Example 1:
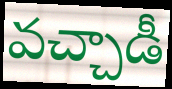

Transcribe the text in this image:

వచ్చాడీ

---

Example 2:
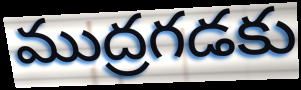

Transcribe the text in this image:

ముద్రగడకు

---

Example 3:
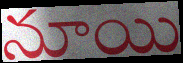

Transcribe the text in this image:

నూయి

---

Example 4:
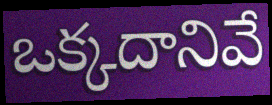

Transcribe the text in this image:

ఒక్కదానివే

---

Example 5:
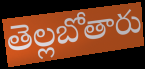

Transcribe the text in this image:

తెల్లబోతారు